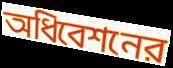
অধিবেশনের